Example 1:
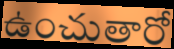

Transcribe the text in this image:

ఉంచుతారో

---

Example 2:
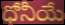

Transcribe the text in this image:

ధోనీయే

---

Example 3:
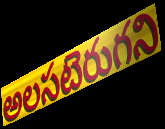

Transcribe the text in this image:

అలసటెరుగని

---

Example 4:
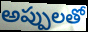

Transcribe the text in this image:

అప్పులతో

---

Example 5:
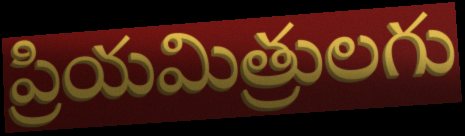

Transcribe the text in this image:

ప్రియమిత్రులగు